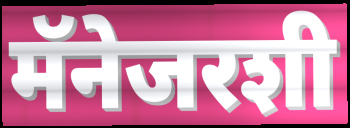
मॅनेजरशी